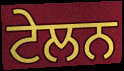
ਟੇਲਨ